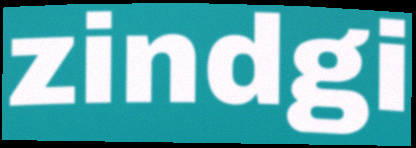
zindgi